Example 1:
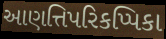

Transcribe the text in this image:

આણત્તિપરિકપ્પિકા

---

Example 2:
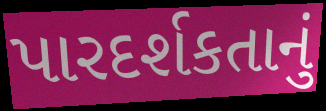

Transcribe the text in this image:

પારદર્શકતાનું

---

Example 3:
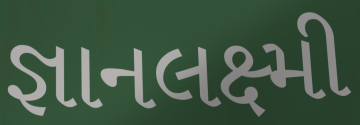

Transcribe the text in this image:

જ્ઞાનલક્ષ્મી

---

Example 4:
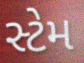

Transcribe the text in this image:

સ્ટેમ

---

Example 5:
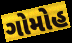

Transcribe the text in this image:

ગોમોહ